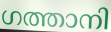
ഗത്താനി